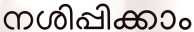
നശിപ്പിക്കാം